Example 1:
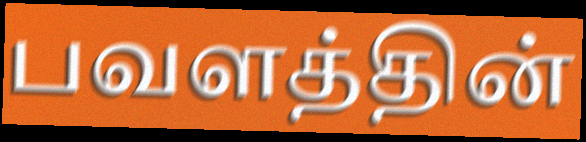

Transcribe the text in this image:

பவளத்தின்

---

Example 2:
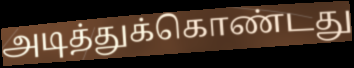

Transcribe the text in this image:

அடித்துக்கொண்டது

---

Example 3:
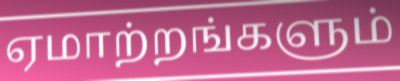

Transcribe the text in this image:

ஏமாற்றங்களும்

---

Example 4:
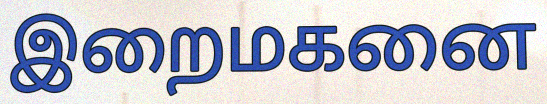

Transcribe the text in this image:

இறைமகனை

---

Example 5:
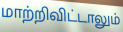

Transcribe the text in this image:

மாற்றிவிட்டாலும்